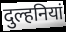
दुल्हनियां